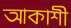
আকাশী